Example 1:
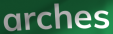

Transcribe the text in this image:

arches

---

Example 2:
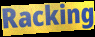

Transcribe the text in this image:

Racking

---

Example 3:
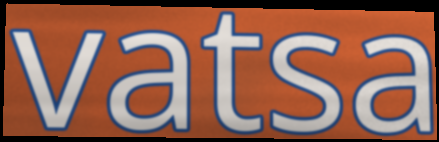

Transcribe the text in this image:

vatsa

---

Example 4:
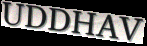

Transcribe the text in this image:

UDDHAV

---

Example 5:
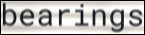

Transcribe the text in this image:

bearings